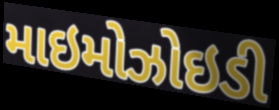
માઇમોઝોઇડી